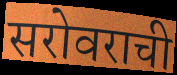
सरोवराची